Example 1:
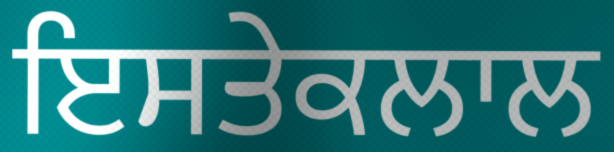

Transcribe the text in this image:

ਇਸਤੇਕਲਾਲ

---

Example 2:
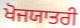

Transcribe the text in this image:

ਖੋਜਯਾਤਰੀ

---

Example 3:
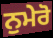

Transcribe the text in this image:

ਨੁਮੇਰੋ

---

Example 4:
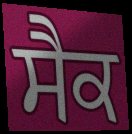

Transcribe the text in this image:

ਸੈਕ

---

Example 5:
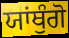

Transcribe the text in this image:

ਯਾਂਥੁੰਗੋ